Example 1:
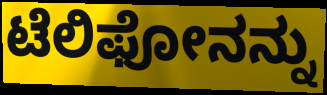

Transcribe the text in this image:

ಟೆಲಿಫೋನನ್ನು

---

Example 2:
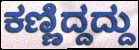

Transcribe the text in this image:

ಕಣ್ಣಿದ್ದದ್ದು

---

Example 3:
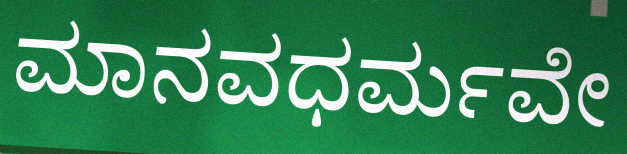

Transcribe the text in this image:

ಮಾನವಧರ್ಮವೇ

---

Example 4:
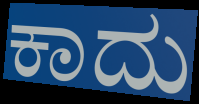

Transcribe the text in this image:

ಕಾದು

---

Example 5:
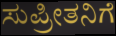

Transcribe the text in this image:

ಸುಪ್ರೀತನಿಗೆ